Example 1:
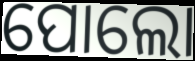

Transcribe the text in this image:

ପୋଲୋ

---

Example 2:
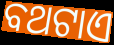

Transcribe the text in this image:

ବଥଟାଏ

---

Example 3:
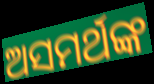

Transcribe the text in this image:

ଅସମର୍ଥଙ୍କ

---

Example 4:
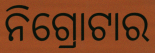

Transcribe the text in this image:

ନିଗ୍ରୋଟାର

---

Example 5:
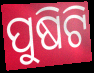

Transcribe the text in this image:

ପୁଷିଟି